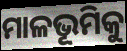
ମାଳଭୂମିକୁ